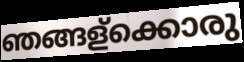
ഞങ്ങള്ക്കൊരു